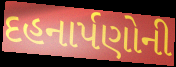
દહનાર્પણોની